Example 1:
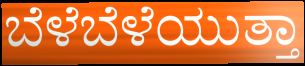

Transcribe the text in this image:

ಬೆಳೆಬೆಳೆಯುತ್ತಾ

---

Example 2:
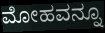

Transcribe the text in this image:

ಮೋಹವನ್ನೂ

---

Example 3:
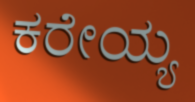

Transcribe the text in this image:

ಕರೇಯ್ಯ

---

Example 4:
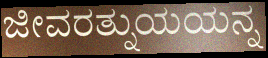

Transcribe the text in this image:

ಜೀವರತ್ನುಯಯನ್ನ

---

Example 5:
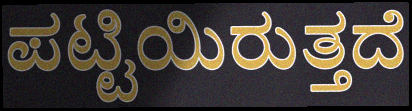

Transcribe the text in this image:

ಪಟ್ಟಿಯಿರುತ್ತದೆ